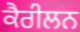
ਕੈਰੀਲਨ